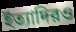
ইত্যাদিরও